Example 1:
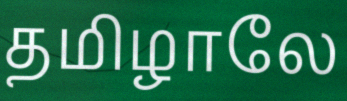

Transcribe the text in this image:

தமிழாலே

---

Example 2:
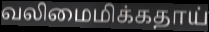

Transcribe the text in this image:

வலிமைமிக்கதாய்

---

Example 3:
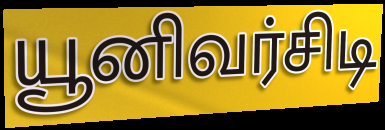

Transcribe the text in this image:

யூனிவர்சிடி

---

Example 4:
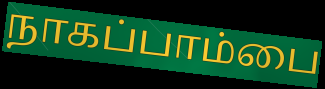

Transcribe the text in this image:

நாகப்பாம்பை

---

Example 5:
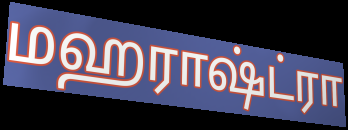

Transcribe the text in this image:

மஹராஷ்ட்ரா